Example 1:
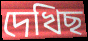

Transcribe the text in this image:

দেখিছ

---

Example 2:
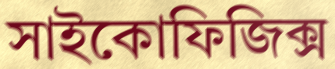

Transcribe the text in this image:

সাইকোফিজিক্স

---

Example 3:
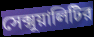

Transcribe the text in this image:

সেক্সুয়ালিটির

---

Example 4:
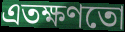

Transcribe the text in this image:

এতক্ষণতো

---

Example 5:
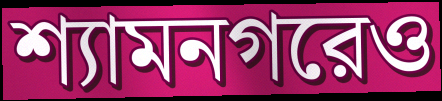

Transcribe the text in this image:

শ্যামনগরেও